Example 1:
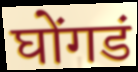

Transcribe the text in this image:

घोंगडं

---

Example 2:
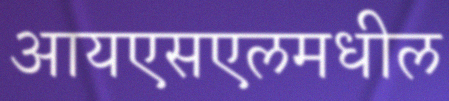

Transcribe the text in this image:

आयएसएलमधील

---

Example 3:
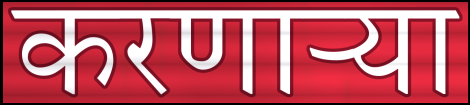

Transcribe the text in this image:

करणाऱ्या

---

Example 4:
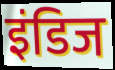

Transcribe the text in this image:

इंडिज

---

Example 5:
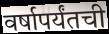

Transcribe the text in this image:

वर्षापर्यंतची